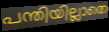
പന്തിയില്ലാതെ